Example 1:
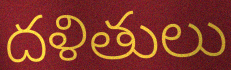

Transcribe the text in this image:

దళితులు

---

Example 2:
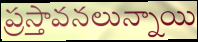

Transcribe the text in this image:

ప్రస్తావనలున్నాయి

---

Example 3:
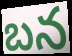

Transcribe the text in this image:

బన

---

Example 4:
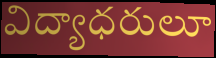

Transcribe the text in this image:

విద్యాధరులూ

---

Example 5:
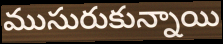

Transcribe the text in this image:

ముసురుకున్నాయి